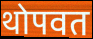
थोपवत